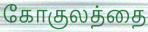
கோகுலத்தை